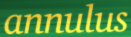
annulus